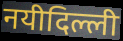
नयीदिल्ली